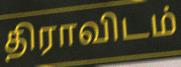
திராவிடம்